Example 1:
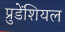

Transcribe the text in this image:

प्रुडेंशियल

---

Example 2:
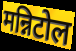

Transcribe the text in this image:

मन्निटोल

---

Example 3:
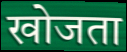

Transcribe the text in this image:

खोजता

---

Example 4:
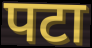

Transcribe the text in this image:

पटा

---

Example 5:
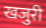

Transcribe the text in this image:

खजुरी